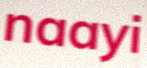
naayi